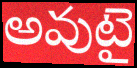
అవుటై